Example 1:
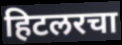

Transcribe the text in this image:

हिटलरचा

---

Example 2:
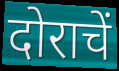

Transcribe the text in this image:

दोराचें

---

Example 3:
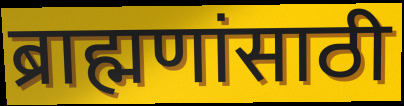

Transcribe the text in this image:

ब्राह्मणांसाठी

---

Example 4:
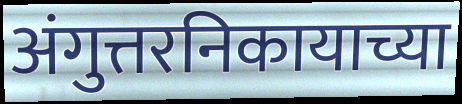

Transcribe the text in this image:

अंगुत्तरनिकायाच्या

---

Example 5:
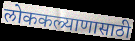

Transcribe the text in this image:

लोककल्याणासाठी